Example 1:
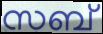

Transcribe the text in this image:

സബ്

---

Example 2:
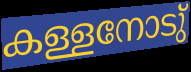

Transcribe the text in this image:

കള്ളനോടു്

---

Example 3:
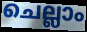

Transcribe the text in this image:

ചെല്ലാം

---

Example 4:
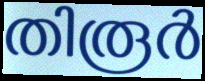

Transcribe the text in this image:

തിരൂർ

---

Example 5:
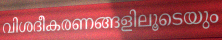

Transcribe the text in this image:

വിശദീകരണങ്ങളിലൂടെയും